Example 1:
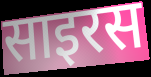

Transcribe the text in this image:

साइरस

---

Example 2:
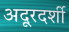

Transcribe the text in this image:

अदूरदर्शी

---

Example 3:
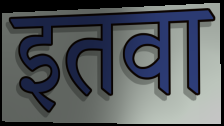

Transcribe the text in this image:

इतवा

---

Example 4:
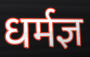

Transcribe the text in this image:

धर्मज्ञ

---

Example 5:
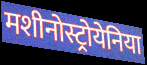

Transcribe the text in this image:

मशीनोस्ट्रोयेनिया